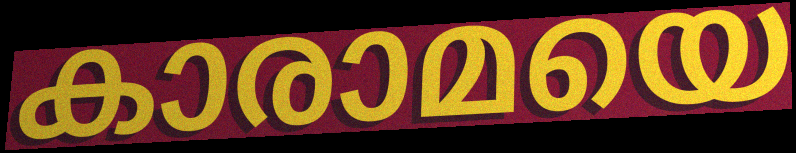
കാരാമയെ